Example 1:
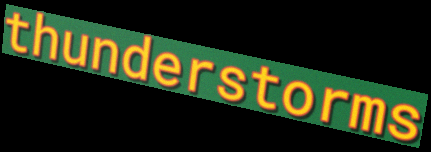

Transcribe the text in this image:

thunderstorms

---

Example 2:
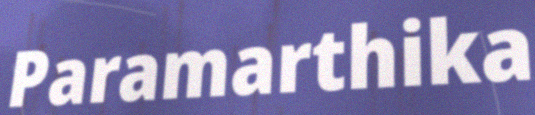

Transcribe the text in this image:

Paramarthika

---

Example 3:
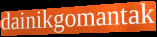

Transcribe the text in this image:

dainikgomantak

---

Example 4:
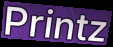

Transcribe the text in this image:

Printz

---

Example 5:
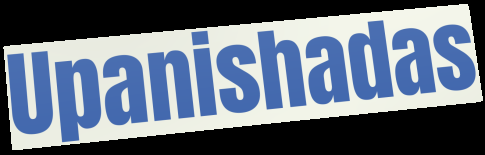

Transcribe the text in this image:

Upanishadas